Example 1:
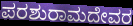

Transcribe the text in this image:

ಪರಶುರಾಮದೇವರ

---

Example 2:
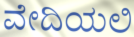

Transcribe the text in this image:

ವೇದಿಯಲಿ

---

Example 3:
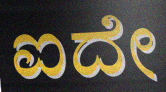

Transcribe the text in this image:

ಐದೇ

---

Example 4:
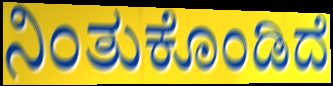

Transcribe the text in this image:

ನಿಂತುಕೊಂಡಿದೆ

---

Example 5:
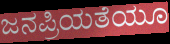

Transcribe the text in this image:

ಜನಪ್ರಿಯತೆಯೂ